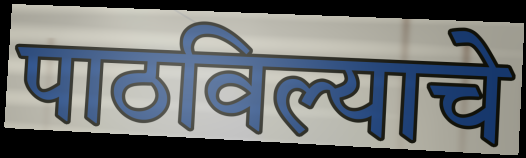
पाठविल्याचे